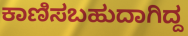
ಕಾಣಿಸಬಹುದಾಗಿದ್ದ